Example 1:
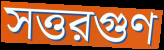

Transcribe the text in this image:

সত্তরগুণ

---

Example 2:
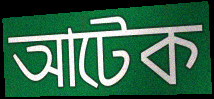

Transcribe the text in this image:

আটেক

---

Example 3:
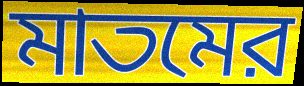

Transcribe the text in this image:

মাতমের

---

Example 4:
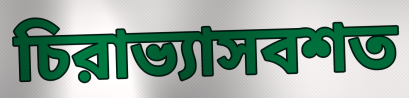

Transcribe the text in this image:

চিরাভ্যাসবশত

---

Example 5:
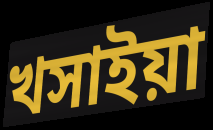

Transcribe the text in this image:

খসাইয়া